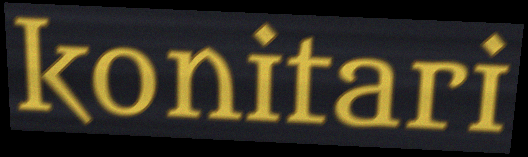
konitari